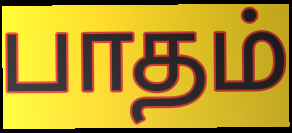
பாதம்